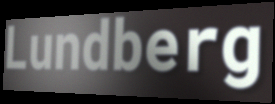
Lundberg